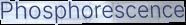
Phosphorescence